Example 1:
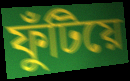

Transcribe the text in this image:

ফুঁটিয়ে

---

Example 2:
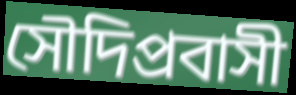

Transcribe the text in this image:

সৌদিপ্রবাসী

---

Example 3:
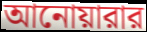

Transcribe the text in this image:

আনোয়ারার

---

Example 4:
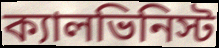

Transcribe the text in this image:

ক্যালভিনিস্ট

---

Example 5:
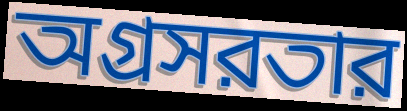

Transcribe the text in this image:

অগ্রসরতার